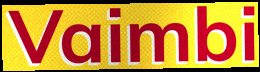
Vaimbi